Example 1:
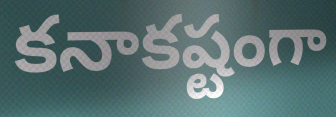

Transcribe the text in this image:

కనాకష్టంగా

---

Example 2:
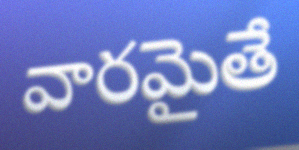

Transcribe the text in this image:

వారమైతే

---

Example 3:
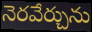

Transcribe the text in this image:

నెరవేర్చును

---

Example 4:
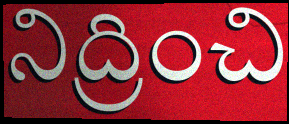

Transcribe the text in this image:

నిద్రించి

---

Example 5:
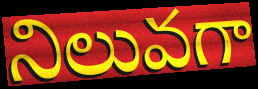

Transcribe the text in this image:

నిలువగా